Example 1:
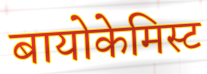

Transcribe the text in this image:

बायोकेमिस्ट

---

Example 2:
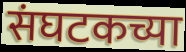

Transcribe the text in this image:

संघटकच्या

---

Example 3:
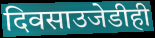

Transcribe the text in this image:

दिवसाउजेडीही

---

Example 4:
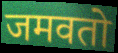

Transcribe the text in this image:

जमवतो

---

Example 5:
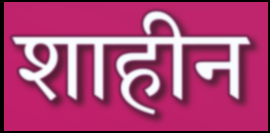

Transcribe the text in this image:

शाहीन